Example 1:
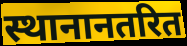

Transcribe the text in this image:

स्थानानतरित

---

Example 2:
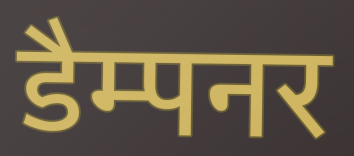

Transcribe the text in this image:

डैम्पनर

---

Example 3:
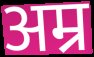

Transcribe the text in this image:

अम्र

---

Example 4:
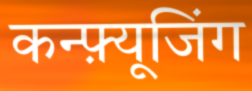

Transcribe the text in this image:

कन्फ़्यूजिंग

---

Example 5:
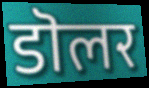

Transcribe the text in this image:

डॊलर